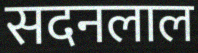
सदनलाल